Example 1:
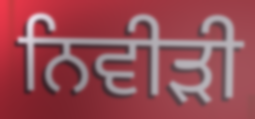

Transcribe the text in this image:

ਨਿਵੀੜੀ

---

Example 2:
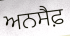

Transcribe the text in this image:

ਅਨਸੈਫ਼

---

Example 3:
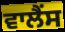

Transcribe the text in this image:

ਵਾਲੈਂਸ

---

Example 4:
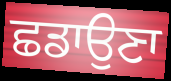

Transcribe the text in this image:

ਛਡਾਉਣਾ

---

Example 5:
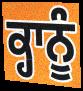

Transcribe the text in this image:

ਕ੍ਹਾਨੂੰ